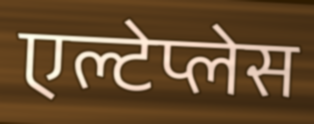
एल्टेप्लेस